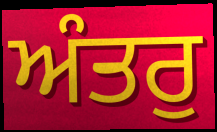
ਅੰਤਰੁ